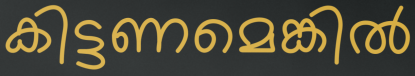
കിട്ടണമെങ്കിൽ